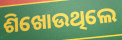
ଶିଖୋଉଥିଲେ